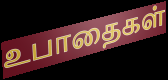
உபாதைகள்